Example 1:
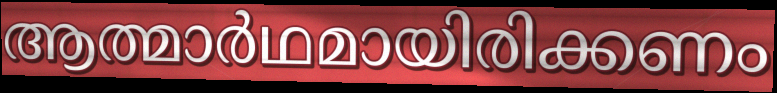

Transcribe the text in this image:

ആത്മാർഥമായിരിക്കണം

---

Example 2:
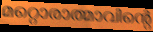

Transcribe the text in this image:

മറ്റൊരാത്മാവിന്റെ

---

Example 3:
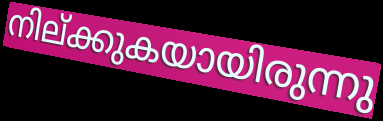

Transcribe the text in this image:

നില്ക്കുകയായിരുന്നു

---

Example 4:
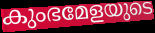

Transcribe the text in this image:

കുംഭമേളയുടെ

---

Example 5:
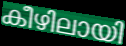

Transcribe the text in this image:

കീഴിലായി